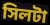
সিলটা